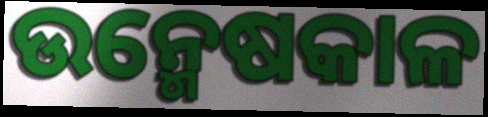
ଉନ୍ମେଷକାଳ